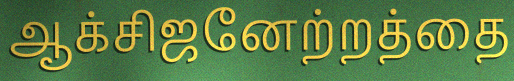
ஆக்சிஜனேற்றத்தை